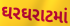
ઘરઘરાટમાં